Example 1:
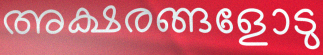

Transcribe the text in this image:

അക്ഷരങ്ങളോടു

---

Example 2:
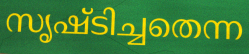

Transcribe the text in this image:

സൃഷ്ടിച്ചതെന്ന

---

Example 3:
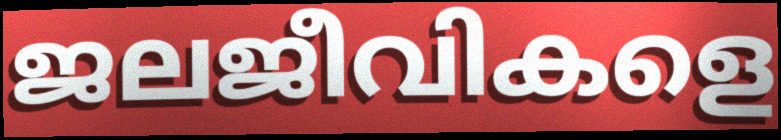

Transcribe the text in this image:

ജലജീവികളെ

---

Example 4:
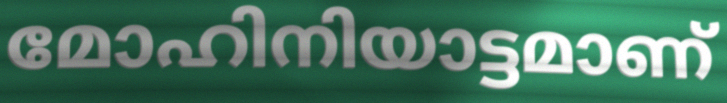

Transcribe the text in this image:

മോഹിനിയാട്ടമാണ്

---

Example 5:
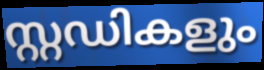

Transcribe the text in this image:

സ്റ്റഡികളും